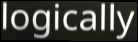
logically